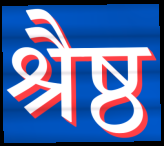
श्रैष्ठ